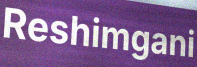
Reshimgani